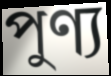
পুণ্য